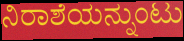
ನಿರಾಶೆಯನ್ನುಂಟು